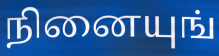
நினையுங்